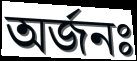
অর্জনঃ